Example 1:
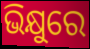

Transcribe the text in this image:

ଭିକ୍ଷୁରେ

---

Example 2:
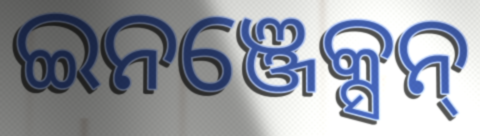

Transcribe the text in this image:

ଇନଞ୍ଜେକ୍ସନ୍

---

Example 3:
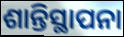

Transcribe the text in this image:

ଶାନ୍ତିସ୍ଥାପନା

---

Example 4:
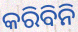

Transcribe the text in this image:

କରିବିନି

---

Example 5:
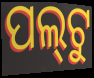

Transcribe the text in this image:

ପଲ୍‍ଟୁ